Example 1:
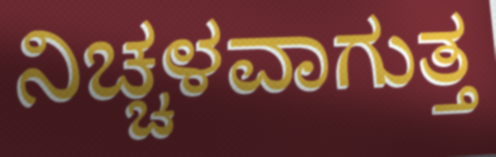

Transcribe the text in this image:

ನಿಚ್ಚಳವಾಗುತ್ತ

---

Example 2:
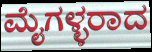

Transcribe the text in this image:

ಮೈಗಳ್ಳರಾದ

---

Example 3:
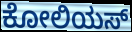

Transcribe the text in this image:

ಕೋಲಿಯಸ್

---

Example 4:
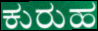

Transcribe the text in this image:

ಕುರುಹ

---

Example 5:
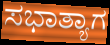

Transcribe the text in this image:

ಸಭಾತ್ಯಾಗ